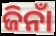
ଜିନାଁ